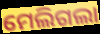
ମେଲିଗଲା